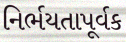
નિર્ભયતાપૂર્વક